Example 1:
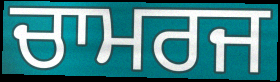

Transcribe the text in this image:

ਚਾਮਰਜ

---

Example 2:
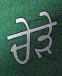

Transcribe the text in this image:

ਚੇੜੇ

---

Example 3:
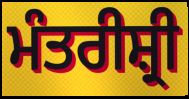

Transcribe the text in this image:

ਮੰਤਰੀਸ਼੍ਰੀ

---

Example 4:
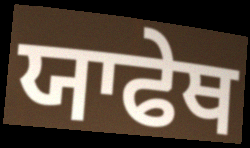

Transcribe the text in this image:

ਯਾਫੇਥ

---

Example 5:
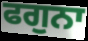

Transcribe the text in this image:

ਫਗੁਨਾ